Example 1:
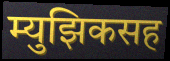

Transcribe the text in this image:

म्युझिकसह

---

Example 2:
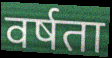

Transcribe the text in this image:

वर्षता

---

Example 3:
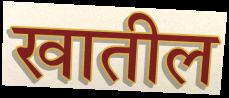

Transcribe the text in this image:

खातील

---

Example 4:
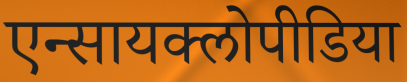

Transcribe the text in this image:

एन्सायक्लोपीडिया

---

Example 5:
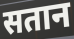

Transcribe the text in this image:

सतान